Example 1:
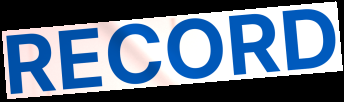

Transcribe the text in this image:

RECORD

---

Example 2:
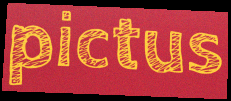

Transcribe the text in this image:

pictus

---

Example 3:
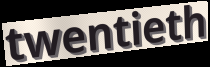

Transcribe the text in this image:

twentieth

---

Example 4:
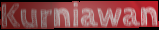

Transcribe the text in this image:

Kurniawan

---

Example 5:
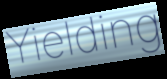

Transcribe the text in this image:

Yielding